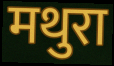
मथुरा